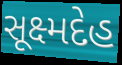
સૂક્ષ્મદેહ